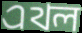
এথল